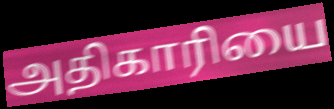
அதிகாரியை